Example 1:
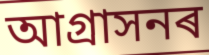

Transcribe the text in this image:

আগ্ৰাসনৰ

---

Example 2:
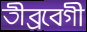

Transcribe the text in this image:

তীব্ৰবেগী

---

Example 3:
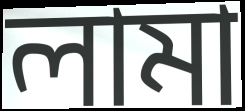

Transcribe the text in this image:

লামা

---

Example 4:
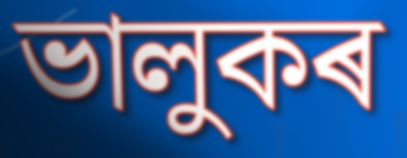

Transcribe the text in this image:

ভালুকৰ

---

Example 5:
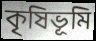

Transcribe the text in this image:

কৃষিভূমি